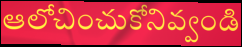
ఆలోచించుకోనివ్వండి